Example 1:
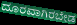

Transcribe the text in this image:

ದೂರವಾಗಿರಬೇಡ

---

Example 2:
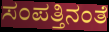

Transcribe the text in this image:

ಸಂಪತ್ತಿನಂತೆ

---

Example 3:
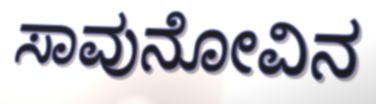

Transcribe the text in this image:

ಸಾವುನೋವಿನ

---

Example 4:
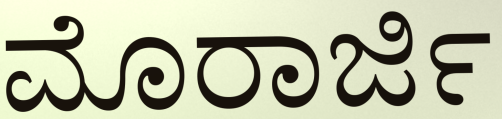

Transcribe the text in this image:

ಮೊರಾರ್ಜಿ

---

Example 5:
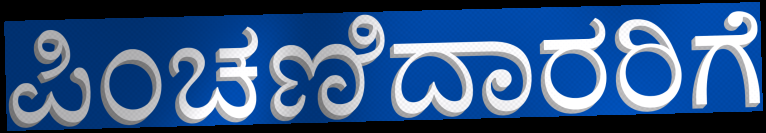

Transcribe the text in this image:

ಪಿಂಚಣಿದಾರರಿಗೆ